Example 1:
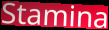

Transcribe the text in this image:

Stamina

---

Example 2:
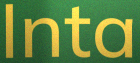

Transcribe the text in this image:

Inta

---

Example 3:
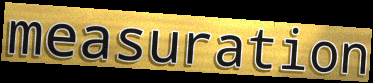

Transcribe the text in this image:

measuration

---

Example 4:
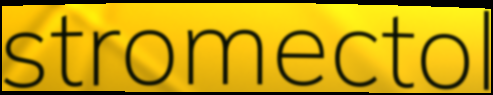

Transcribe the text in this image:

stromectol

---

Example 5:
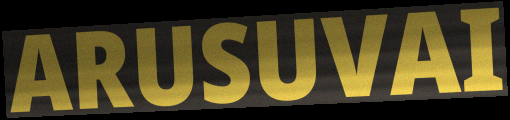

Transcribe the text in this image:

ARUSUVAI